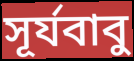
সূর্যবাবু